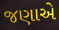
જણાએ